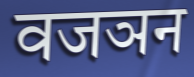
वजञन